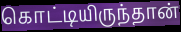
கொட்டியிருந்தான்